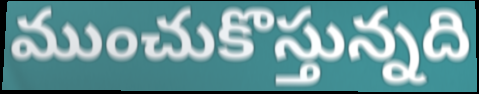
ముంచుకొస్తున్నది